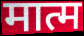
मात्म